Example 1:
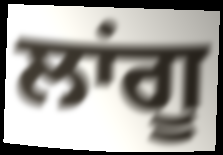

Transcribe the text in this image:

ਲਾਂਗੂ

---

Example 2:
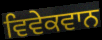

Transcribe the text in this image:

ਵਿਵੇਕਵਾਨ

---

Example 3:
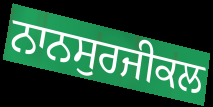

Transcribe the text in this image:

ਨਾਨਸੁਰਜੀਕਲ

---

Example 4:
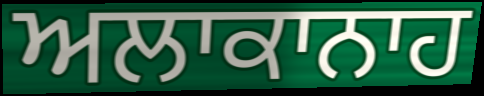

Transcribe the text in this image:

ਅਲਾਕਾਨਾਹ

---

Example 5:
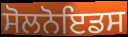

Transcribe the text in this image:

ਸੋਲਨੋਇਡਸ